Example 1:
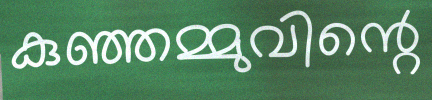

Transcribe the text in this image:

കുഞ്ഞമ്മുവിന്റെ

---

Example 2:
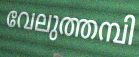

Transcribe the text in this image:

വേലുത്തമ്പി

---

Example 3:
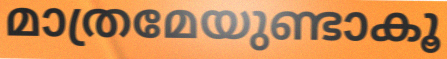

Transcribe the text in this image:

മാത്രമേയുണ്ടാകൂ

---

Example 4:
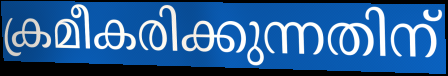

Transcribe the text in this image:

ക്രമീകരിക്കുന്നതിന്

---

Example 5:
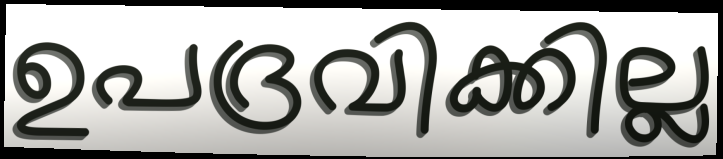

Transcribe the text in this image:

ഉപദ്രവിക്കില്ല